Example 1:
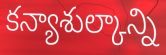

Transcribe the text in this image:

కన్యాశుల్కాన్ని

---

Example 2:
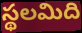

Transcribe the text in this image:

స్థలమిది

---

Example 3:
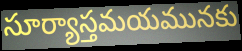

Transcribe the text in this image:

సూర్యాస్తమయమునకు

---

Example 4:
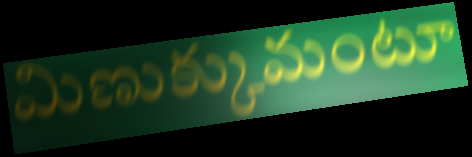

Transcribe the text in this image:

మిణుక్కుమంటూ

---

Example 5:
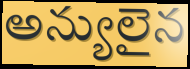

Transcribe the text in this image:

అన్యులైన